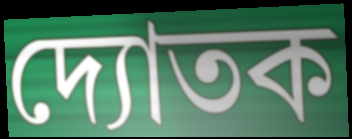
দ্যোতক